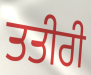
ਤਤੀਰੀ